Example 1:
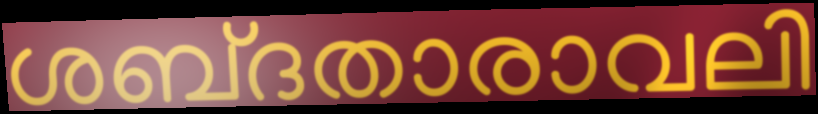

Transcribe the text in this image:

ശബ്‌ദതാരാവലി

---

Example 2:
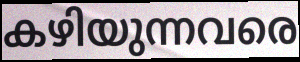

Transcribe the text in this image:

കഴിയുന്നവരെ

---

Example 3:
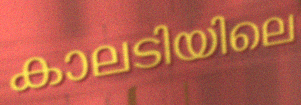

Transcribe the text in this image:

കാലടിയിലെ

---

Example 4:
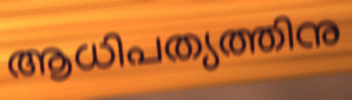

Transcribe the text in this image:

ആധിപത്യത്തിനു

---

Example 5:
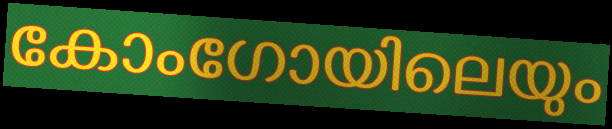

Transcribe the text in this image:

കോംഗോയിലെയും